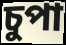
চুপা